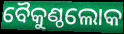
ବୈକୁଣ୍ଠଲୋକ